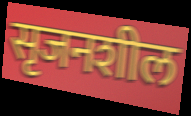
सृजनशील